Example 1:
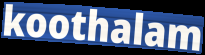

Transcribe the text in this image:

koothalam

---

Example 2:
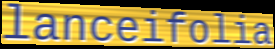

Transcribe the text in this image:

lanceifolia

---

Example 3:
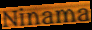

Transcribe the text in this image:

Ninama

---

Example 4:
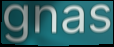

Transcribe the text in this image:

gnas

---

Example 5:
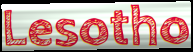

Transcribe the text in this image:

Lesotho